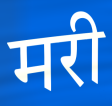
मरी